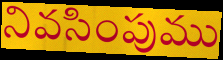
నివసింపుము